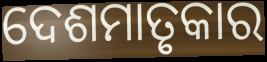
ଦେଶମାତୃକାର